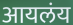
आयलंय